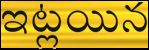
ఇట్లయిన